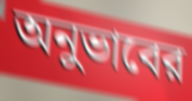
অনুভাবের